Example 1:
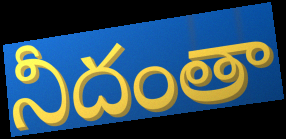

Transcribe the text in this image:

నీదంతా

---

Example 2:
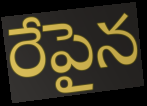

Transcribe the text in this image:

రేపైన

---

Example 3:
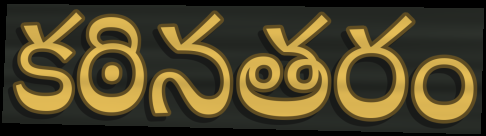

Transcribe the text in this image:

కఠినతరం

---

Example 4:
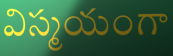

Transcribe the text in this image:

విస్మయంగా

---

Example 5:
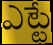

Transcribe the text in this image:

ఎట్టే